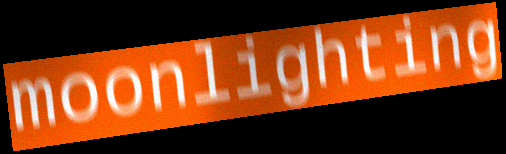
moonlighting